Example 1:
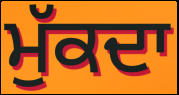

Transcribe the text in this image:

ਮੁੱਕਦਾ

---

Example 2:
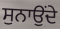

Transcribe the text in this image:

ਸੁਨਾਉਂਦੇ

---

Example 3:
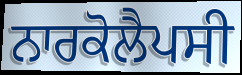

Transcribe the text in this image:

ਨਾਰਕੋਲੈਪਸੀ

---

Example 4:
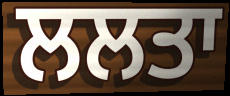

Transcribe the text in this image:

ਲਲਤਾ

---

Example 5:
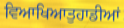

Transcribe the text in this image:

ਵਿਆਖਿਆਤੁਹਾਡੀਆਂ